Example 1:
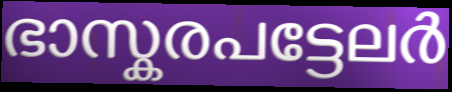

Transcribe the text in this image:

ഭാസ്കരപട്ടേലർ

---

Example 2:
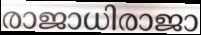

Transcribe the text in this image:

രാജാധിരാജാ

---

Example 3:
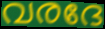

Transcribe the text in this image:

വരദേ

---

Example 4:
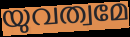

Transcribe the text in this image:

യുവത്വമേ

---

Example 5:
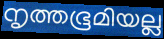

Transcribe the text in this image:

നൃത്തഭൂമിയല്ല